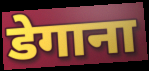
डेगाना